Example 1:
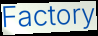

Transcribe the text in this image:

Factory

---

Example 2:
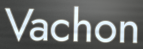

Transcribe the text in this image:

Vachon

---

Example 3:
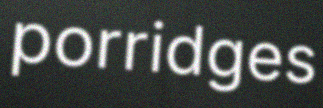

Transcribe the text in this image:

porridges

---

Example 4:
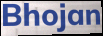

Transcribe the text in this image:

Bhojan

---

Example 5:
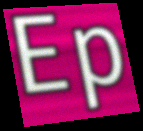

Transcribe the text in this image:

Ep